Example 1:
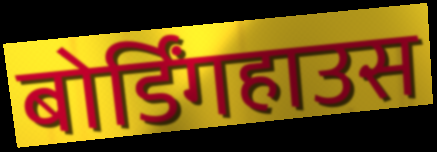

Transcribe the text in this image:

बोर्डिंगहाउस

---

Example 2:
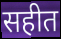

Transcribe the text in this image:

सहीत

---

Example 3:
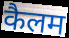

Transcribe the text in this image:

कैलम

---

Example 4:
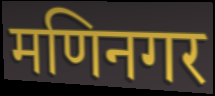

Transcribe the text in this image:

मणिनगर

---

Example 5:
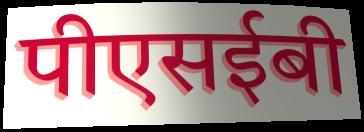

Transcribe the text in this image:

पीएसईबी